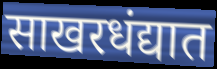
साखरधंद्यात